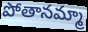
పోతానమ్మా